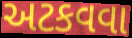
અટકવવા